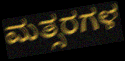
ಮತ್ಸರಗಳ